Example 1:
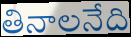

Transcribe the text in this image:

తినాలనేది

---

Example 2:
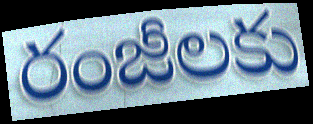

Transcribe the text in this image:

రంజీలకు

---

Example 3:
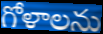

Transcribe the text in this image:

గోళాలను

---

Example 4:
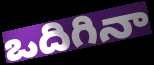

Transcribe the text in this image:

ఒదిగినా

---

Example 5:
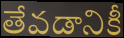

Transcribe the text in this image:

తేవడానికీ